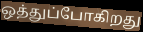
ஒத்துப்போகிறது